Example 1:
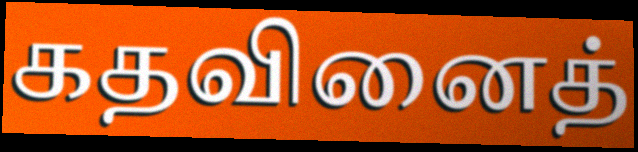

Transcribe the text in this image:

கதவினைத்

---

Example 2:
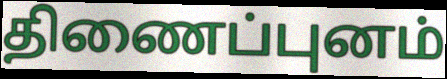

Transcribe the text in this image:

திணைப்புனம்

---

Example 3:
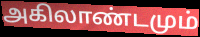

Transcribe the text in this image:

அகிலாண்டமும்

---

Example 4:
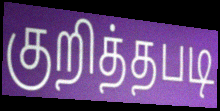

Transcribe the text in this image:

குறித்தபடி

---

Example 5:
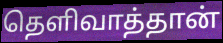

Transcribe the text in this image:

தெளிவாத்தான்